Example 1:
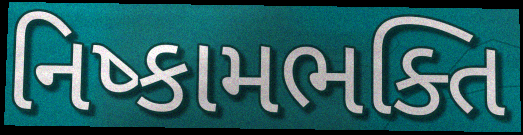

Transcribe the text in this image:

નિષ્કામભક્તિ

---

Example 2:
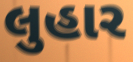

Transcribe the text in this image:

લુહાર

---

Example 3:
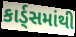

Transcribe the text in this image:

કાર્ડ્સમાંથી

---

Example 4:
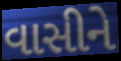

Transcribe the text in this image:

વાસીને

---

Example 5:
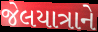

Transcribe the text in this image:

જેલયાત્રાને